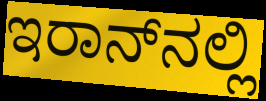
ಇರಾನ್‌ನಲ್ಲಿ